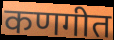
कणगीत